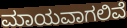
ಮಾಯವಾಗಲಿವೆ